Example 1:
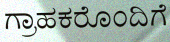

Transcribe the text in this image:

ಗ್ರಾಹಕರೊಂದಿಗೆ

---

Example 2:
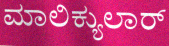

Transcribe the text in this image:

ಮಾಲಿಕ್ಯುಲಾರ್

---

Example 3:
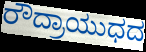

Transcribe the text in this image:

ರೌದ್ರಾಯುಧದ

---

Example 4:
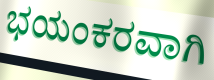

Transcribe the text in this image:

ಭಯಂಕರವಾಗಿ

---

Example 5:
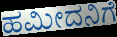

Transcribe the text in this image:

ಹಮೀದನಿಗೆ